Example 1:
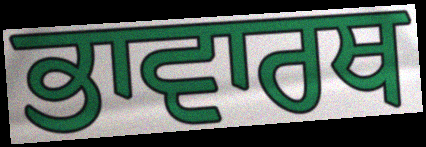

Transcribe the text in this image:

ਭਾਵਾਰਥ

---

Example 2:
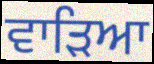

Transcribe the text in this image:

ਵਾੜਿਆ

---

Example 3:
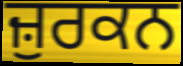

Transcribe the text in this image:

ਜ਼ੁਰਕਨ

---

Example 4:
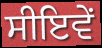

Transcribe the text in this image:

ਸੀਇਵੇਂ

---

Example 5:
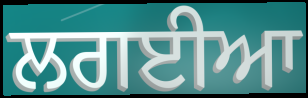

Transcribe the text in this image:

ਲਗਈਆ